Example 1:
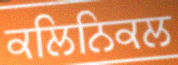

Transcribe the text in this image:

ਕਲਿਨਿਕਲ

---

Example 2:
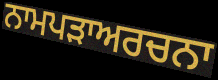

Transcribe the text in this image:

ਨਾਮਪੜਾਅਰਚਨਾ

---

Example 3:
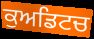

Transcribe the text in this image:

ਕੁਅਡਿਟਚ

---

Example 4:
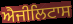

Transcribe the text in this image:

ਐਜੀਲਿਟਾਸ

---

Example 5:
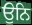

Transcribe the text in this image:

ਉਨਿ